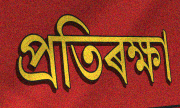
প্ৰতিৰক্ষা